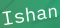
Ishan